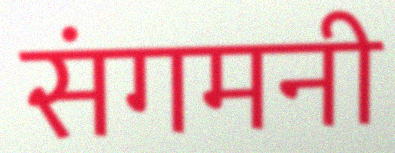
संगमनी